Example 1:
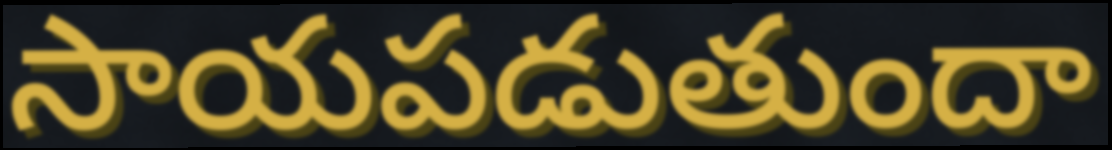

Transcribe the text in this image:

సాయపడుతుందా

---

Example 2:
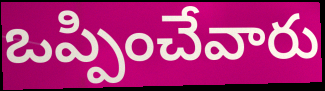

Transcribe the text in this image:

ఒప్పించేవారు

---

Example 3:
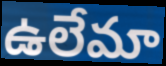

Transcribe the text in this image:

ఉలేమా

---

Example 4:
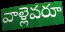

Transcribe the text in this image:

వాళ్లెవరూ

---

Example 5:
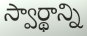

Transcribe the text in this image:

స్వార్థాన్ని